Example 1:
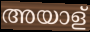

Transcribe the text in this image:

അയാള്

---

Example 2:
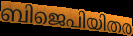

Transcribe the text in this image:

ബിജെപിയിതര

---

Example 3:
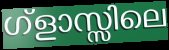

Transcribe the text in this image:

ഗ്ളാസ്സിലെ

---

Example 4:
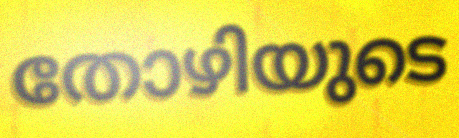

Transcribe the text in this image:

തോഴിയുടെ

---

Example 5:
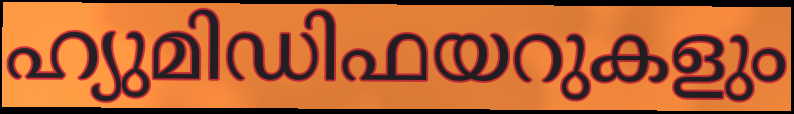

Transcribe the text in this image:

ഹ്യുമിഡിഫയറുകളും